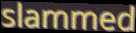
slammed